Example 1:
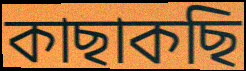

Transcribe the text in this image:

কাছাকছি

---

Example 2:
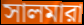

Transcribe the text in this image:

সালমারা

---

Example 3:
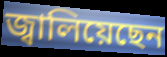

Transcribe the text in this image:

জ্বালিয়েছেন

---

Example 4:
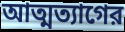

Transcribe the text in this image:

আত্মত্যাগের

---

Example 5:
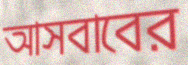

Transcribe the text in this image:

আসবাবের